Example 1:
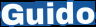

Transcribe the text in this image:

Guido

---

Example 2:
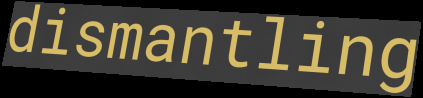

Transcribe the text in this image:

dismantling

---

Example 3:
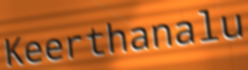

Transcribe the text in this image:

Keerthanalu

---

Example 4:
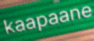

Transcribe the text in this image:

kaapaane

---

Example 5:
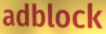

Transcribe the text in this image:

adblock